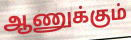
ஆணுக்கும்